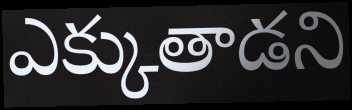
ఎక్కుతాడని